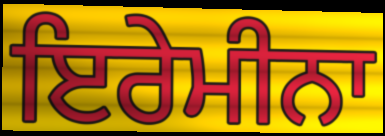
ਇਰੇਮੀਨਾ